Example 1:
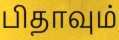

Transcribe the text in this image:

பிதாவும்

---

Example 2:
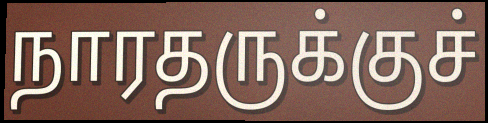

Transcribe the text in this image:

நாரதருக்குச்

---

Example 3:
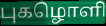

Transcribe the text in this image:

புகழொளி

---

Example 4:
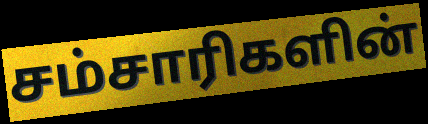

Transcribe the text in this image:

சம்சாரிகளின்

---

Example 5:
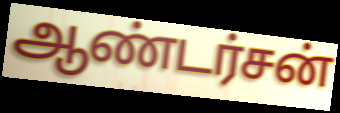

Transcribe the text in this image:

ஆண்டர்சன்